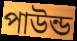
পাউন্ড